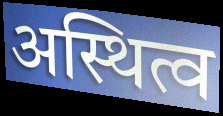
अस्थित्व